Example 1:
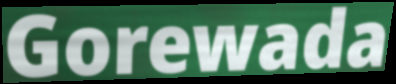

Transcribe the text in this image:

Gorewada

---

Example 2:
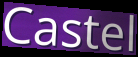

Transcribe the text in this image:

Castel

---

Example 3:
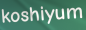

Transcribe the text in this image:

koshiyum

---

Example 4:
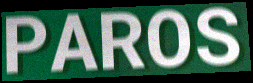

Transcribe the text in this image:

PAROS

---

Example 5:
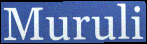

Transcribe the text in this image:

Muruli